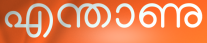
എന്താണു